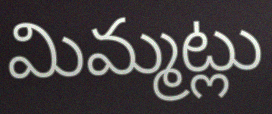
మిమ్మట్లు